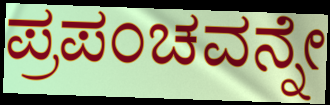
ಪ್ರಪಂಚವನ್ನೇ